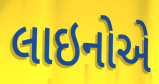
લાઇનોએ